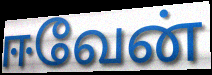
ஈவேன்